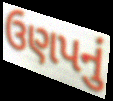
ઉણપનું